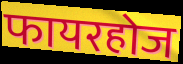
फायरहोज